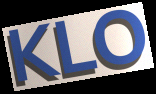
KLO